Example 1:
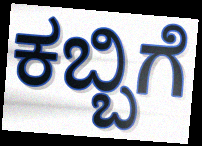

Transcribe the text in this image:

ಕಬ್ಬಿಗೆ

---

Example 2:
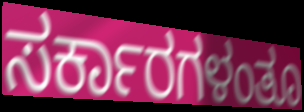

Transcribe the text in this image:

ಸರ್ಕಾರಗಳಂತೂ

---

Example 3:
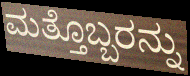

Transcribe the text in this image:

ಮತ್ತೊಬ್ಬರನ್ನು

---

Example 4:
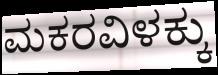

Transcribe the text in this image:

ಮಕರವಿಳಕ್ಕು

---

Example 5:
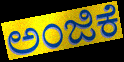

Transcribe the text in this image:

ಅಂಜಿಕೆ